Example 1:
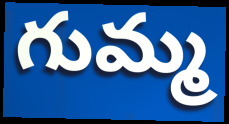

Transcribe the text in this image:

గుమ్మ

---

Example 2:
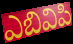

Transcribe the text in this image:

ఎబివిపి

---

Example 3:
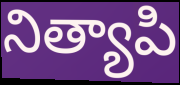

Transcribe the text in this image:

నిత్యాపి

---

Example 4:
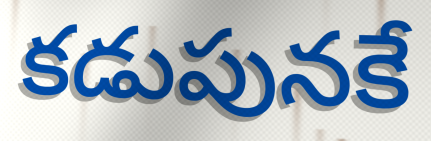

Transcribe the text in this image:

కడుపునకే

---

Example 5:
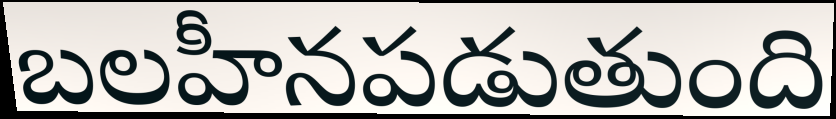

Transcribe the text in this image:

బలహీనపడుతుంది